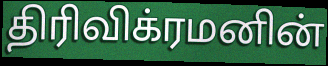
திரிவிக்ரமனின்